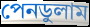
পেনডুলাম